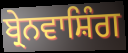
ਬ੍ਰੇਨਵਾਸ਼ਿੰਗ